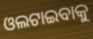
ଓଲଟାଇବାକୁ